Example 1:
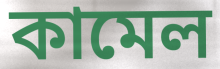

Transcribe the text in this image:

কামেল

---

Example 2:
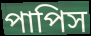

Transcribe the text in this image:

পাপিস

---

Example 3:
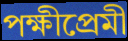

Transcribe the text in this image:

পক্ষীপ্রেমী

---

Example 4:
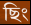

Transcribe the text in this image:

ছিং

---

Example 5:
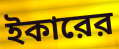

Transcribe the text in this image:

ইকারের